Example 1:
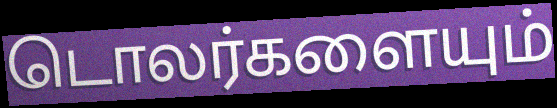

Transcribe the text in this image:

டொலர்களையும்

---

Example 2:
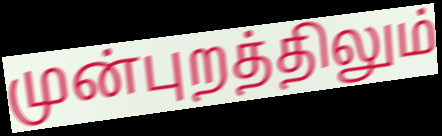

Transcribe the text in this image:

முன்புறத்திலும்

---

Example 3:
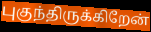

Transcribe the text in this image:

புகுந்திருக்கிறேன்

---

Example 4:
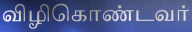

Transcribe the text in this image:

விழிகொண்டவர்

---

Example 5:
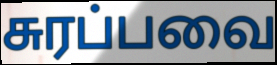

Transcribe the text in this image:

சுரப்பவை